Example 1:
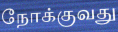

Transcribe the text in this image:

நோக்குவது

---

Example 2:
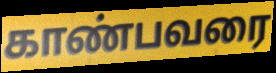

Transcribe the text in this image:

காண்பவரை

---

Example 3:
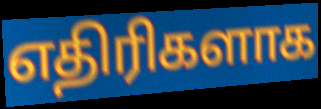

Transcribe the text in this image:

எதிரிகளாக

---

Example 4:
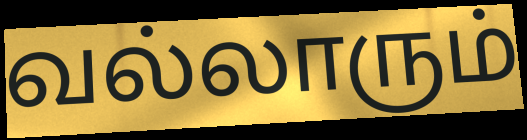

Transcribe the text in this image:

வல்லாரும்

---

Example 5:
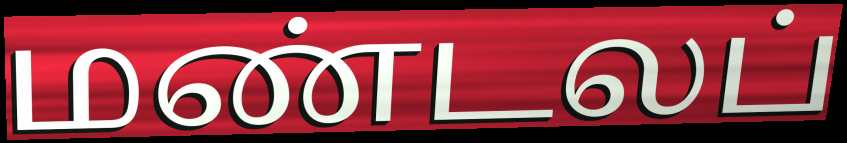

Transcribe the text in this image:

மண்டலப்